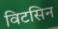
विटसिन